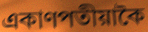
একাণপতীয়াকৈ